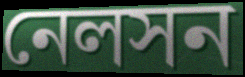
নেলসন